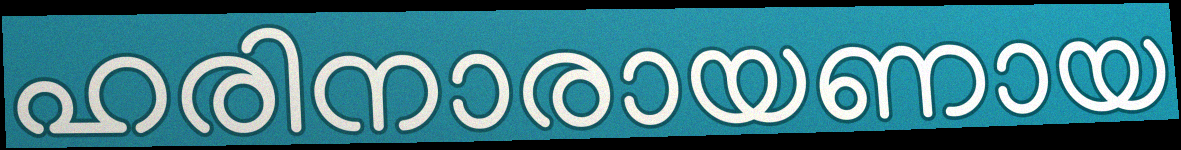
ഹരിനാരായണായ